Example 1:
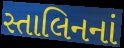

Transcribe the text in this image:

સ્તાલિનનાં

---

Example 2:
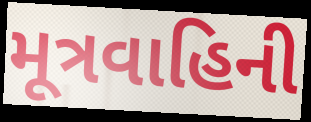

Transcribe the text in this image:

મૂત્રવાહિની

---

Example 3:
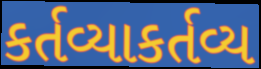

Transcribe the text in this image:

કર્તવ્યાકર્તવ્ય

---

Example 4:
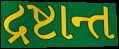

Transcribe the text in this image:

દ્રષ્ટાન્ત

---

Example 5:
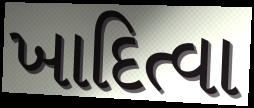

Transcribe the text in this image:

ખાદિત્વા